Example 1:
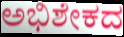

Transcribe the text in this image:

ಅಭಿಶೇಕದ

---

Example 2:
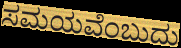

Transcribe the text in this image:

ಸಮಯವೆಂಬುದು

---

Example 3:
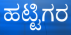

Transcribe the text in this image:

ಹಟ್ಟಿಗರ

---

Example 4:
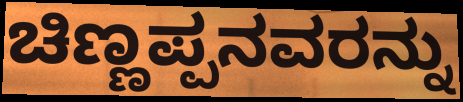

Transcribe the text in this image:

ಚಿಣ್ಣಪ್ಪನವರನ್ನು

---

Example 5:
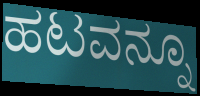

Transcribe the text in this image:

ಹಟವನ್ನೂ